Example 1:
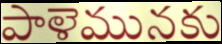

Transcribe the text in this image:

పాళెమునకు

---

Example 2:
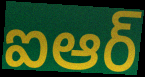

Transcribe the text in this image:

ఐఆర్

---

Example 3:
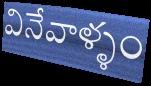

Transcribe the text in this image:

వినేవాళ్ళం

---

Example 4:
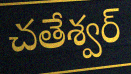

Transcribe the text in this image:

చతేశ్వర్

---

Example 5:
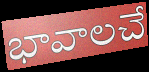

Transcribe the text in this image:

భావాలచే